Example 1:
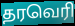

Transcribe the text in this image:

தரவெரி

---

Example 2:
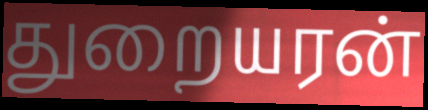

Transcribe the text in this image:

துறையரன்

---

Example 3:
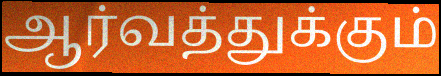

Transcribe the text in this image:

ஆர்வத்துக்கும்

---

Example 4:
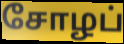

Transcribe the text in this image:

சோழப்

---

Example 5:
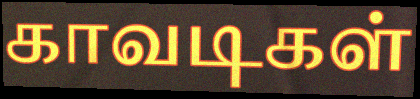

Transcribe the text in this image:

காவடிகள்